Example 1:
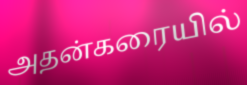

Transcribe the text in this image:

அதன்கரையில்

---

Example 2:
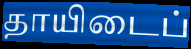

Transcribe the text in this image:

தாயிடைப்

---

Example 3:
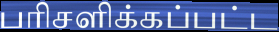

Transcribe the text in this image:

பரிசளிக்கப்பட்ட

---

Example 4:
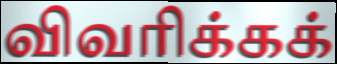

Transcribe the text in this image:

விவரிக்கக்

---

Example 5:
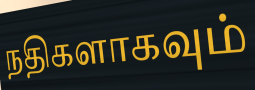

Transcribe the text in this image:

நதிகளாகவும்